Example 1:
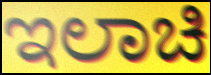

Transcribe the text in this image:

ಇಲಾಚಿ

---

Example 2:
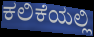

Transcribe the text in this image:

ಕಲಿಕೆಯಲ್ಲಿ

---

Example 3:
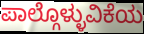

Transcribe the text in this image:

ಪಾಲ್ಗೊಳ್ಳುವಿಕೆಯ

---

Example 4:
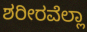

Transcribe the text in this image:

ಶರೀರವೆಲ್ಲಾ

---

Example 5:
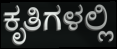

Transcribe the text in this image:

ಕೃತಿಗಳಲ್ಲಿ